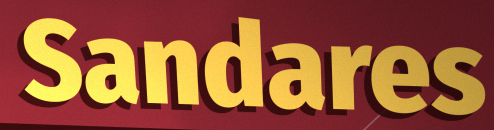
Sandares